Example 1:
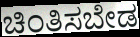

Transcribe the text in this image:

ಚಿಂತಿಸಬೇಡ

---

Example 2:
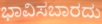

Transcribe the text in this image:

ಭಾವಿಸಬಾರದು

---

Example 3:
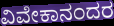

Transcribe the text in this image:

ವಿವೇಕಾನಂದರ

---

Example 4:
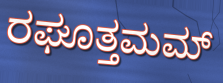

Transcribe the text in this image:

ರಘೂತ್ತಮಮ್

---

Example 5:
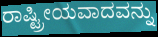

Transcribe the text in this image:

ರಾಷ್ಟ್ರೀಯವಾದವನ್ನು